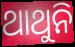
ଥାଥୁନି